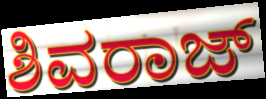
ಶಿವರಾಜ್